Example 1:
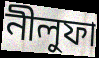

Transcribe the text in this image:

নীলুফা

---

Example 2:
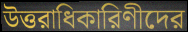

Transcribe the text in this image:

উত্তরাধিকারিণীদের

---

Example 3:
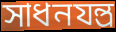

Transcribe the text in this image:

সাধনযন্ত্র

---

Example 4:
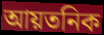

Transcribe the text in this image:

আয়তনিক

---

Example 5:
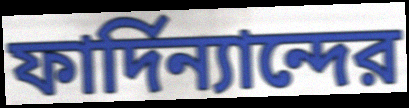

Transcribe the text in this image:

ফার্দিন্যান্দের